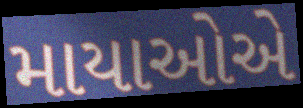
માયાઓએ